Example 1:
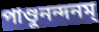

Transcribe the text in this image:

পাণ্ডুনন্দনম্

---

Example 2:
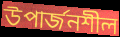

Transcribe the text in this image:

উপার্জনশীল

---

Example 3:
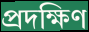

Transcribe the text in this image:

প্রদক্ষিণ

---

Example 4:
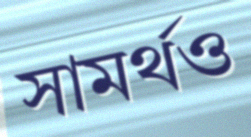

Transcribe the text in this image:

সামর্থও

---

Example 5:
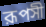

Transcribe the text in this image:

রূপসী